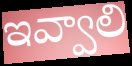
ఇవ్వాలి